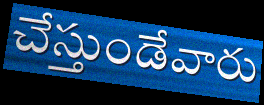
చేస్తుండేవారు